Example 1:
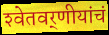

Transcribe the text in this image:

श्वेतवर्णीयांचं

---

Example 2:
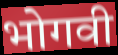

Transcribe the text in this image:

भोगवी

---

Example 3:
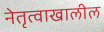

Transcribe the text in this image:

नेतृत्वाखालील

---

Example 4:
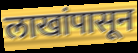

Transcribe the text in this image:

लाखांपासून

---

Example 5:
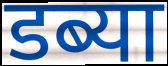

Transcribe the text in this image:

डब्या